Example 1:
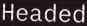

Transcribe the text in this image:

Headed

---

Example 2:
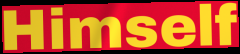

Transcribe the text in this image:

Himself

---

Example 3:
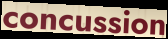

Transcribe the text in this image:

concussion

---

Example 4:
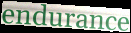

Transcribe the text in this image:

endurance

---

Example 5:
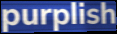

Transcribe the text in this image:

purplish